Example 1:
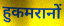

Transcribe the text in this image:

हुकमरानों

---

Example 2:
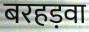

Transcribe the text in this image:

बरहड़वा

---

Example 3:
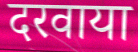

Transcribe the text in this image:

दरवाया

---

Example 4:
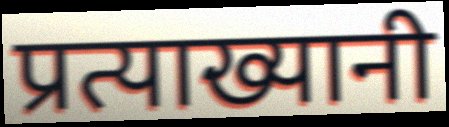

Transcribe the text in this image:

प्रत्याख्यानी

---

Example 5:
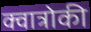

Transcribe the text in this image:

क्वात्रोकी